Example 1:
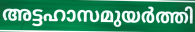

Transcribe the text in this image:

അട്ടഹാസമുയർത്തി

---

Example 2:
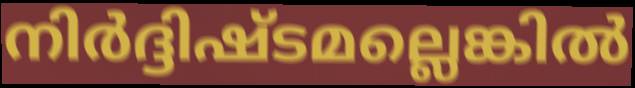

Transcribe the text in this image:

നിർദ്ദിഷ്ടമല്ലെങ്കിൽ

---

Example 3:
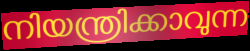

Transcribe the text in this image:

നിയന്ത്രിക്കാവുന്ന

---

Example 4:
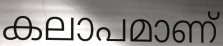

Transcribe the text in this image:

കലാപമാണ്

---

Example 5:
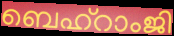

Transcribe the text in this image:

ബെഹ്റാംജി